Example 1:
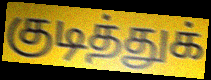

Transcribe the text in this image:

குடித்துக்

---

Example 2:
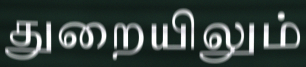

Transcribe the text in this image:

துறையிலும்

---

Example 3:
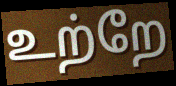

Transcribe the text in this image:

உற்றே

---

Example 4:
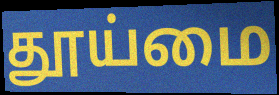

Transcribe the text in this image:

தூய்மை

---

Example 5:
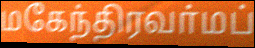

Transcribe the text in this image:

மகேந்திரவர்மப்